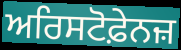
ਅਰਿਸਟੋਫ਼ੇਨਜ਼